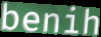
benih